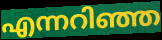
എന്നറിഞ്ഞ